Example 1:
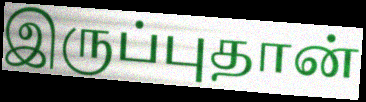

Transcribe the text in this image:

இருப்புதான்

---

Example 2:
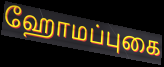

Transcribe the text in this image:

ஹோமப்புகை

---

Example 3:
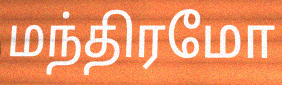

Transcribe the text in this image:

மந்திரமோ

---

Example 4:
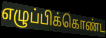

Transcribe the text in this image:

எழுப்பிக்கொண்ட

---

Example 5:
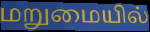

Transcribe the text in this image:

மறுமையில்